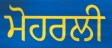
ਮੋਹਰਲੀ